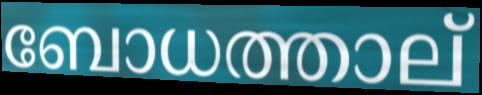
ബോധത്താല്